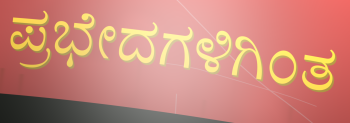
ಪ್ರಭೇದಗಳಿಗಿಂತ